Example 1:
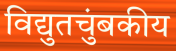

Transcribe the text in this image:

विद्युतचुंबकीय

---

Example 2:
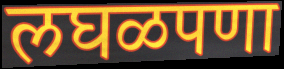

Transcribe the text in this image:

लघळपणा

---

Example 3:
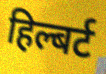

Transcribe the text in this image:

हिल्बर्ट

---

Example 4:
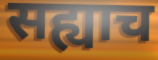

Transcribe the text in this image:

सह्याच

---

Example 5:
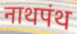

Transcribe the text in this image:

नाथपंथ